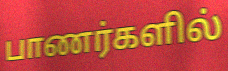
பாணர்களில்